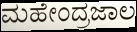
ಮಹೇಂದ್ರಜಾಲ